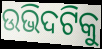
ଉଭିଦଟିକୁ